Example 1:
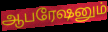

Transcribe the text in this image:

ஆபரேஷனும்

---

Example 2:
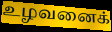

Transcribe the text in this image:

உழவனைக்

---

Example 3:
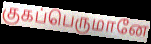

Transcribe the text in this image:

குகப்பெருமானே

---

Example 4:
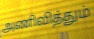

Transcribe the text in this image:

அணிவித்தும்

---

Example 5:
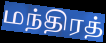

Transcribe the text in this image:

மந்திரத்